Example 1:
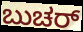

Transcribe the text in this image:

ಬುಚರ್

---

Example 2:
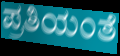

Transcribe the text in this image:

ಪ್ರತಿಯಂತೆ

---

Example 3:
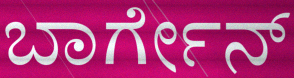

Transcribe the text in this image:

ಬಾರ್ಗೇನ್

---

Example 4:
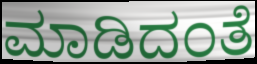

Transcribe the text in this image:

ಮಾಡಿದಂತೆ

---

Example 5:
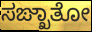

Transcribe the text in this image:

ಸಙ್ಖಾತೋ